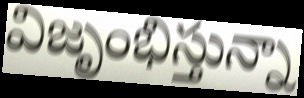
విజృంభిస్తున్నా